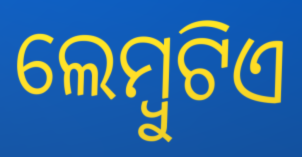
ଲେମ୍ବୁଟିଏ